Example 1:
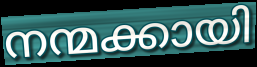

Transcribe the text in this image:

നന്മക്കായി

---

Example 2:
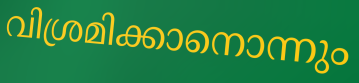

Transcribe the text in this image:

വിശ്രമിക്കാനൊന്നും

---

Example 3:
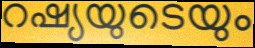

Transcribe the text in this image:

റഷ്യയുടെയും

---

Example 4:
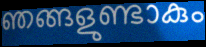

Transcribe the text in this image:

ഞങ്ങളുണ്ടാകും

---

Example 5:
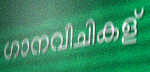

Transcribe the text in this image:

ഗാനവീചികള്